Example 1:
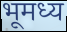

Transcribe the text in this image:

भूमध्य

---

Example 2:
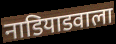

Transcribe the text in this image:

नाडियाडवाला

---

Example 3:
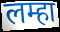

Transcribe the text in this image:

लम्हा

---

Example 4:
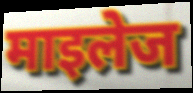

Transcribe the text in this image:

माइलेज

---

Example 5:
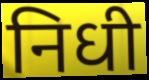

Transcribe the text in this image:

निधी